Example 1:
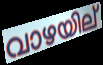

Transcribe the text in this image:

വാഴയില്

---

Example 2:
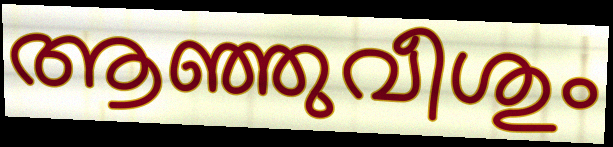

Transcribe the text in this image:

ആഞ്ഞുവീശും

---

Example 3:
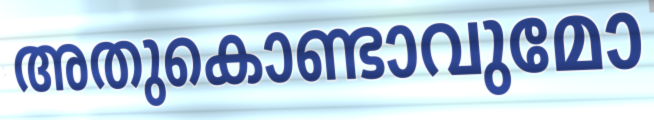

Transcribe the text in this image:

അതുകൊണ്ടാവുമോ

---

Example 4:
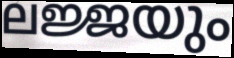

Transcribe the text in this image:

ലജ്ജയും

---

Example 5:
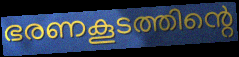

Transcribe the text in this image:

ഭരണകൂടത്തിന്റെ